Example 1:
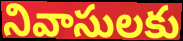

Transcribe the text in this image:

నివాసులకు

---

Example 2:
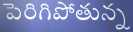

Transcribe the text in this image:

పెరిగిపోతున్న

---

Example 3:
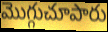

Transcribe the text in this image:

మొగ్గుచూపారు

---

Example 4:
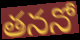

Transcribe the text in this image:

తననో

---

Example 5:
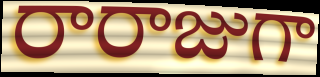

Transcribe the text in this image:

రారాజుగా